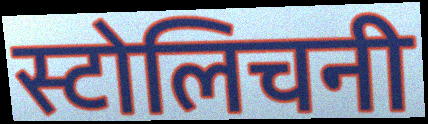
स्टोलिचनी